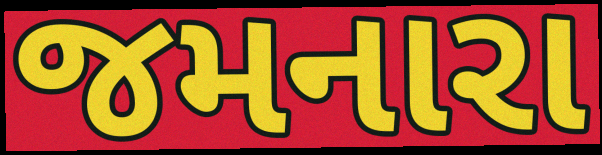
જમનારા